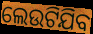
ଲେଉଟିଯିବ